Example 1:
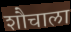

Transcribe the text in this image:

शौचाला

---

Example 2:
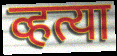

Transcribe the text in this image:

व्हत्या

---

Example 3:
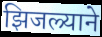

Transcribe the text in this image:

झिजल्याने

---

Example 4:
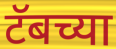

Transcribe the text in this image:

टॅबच्या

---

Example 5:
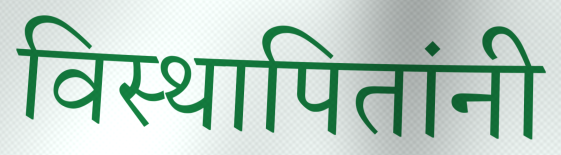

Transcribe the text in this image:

विस्थापितांनी